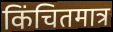
किंचितमात्र